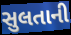
સુલતાની